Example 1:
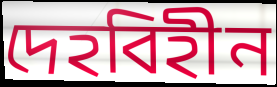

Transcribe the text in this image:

দেহবিহীন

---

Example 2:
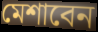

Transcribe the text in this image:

মেশাবেন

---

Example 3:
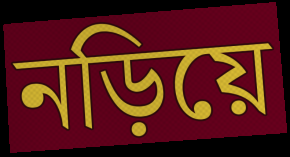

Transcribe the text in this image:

নড়িয়ে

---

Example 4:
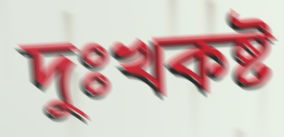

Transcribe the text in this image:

দুঃখকষ্ট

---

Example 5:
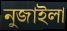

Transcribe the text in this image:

নুজাইলা